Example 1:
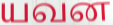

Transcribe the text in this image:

யவன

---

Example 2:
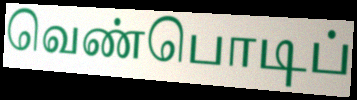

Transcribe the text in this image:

வெண்பொடிப்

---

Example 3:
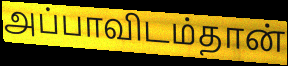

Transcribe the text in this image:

அப்பாவிடம்தான்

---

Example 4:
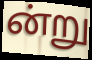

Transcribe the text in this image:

ன்று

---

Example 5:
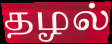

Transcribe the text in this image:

தழல்